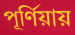
পূর্ণিয়ায়